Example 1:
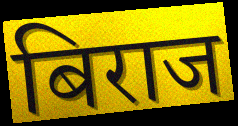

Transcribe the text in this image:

बिराज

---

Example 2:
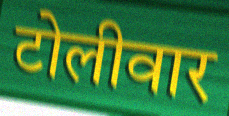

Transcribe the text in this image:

टोलीवार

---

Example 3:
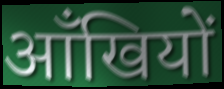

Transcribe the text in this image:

आँखियों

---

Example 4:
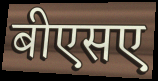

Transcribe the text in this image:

बीएसए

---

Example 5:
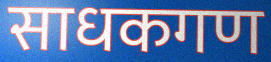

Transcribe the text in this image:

साधकगण